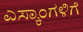
ಎಸ್ಕಾಂಗಳಿಗೆ